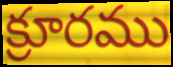
క్రూరము